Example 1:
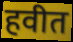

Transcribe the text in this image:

हवीत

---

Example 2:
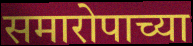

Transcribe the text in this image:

समारोपाच्या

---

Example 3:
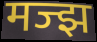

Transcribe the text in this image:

मज्झ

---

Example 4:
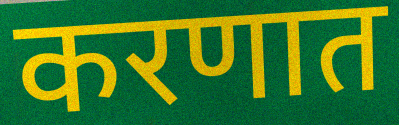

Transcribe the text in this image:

करणात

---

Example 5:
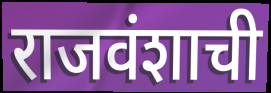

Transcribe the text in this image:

राजवंशाची